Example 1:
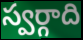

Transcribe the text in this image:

స్వర్గాది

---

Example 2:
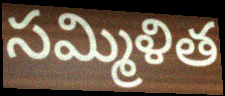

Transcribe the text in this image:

సమ్మిళిత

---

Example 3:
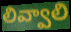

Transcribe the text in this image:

లివ్వాలి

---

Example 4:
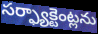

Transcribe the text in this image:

సర్ఫ్యాక్టెంట్లను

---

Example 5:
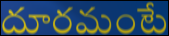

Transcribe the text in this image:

దూరమంటే